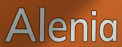
Alenia